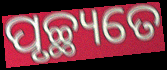
ପୃଚ୍ଛ୍ୟତେ